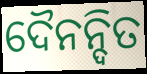
ଦୈନନ୍ଦିତ